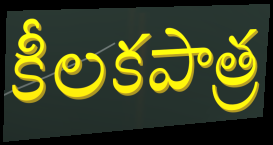
కీలకపాత్ర